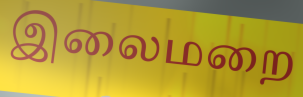
இலைமறை